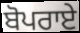
ਬੋਪਰਾਏ